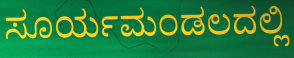
ಸೂರ್ಯಮಂಡಲದಲ್ಲಿ